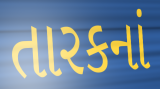
તારકનાં